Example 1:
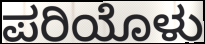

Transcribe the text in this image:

ಪರಿಯೊಳು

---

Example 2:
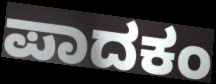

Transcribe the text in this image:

ಪಾದಕಂ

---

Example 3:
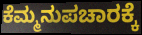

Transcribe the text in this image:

ಕೆಮ್ಮನುಪಚಾರಕ್ಕೆ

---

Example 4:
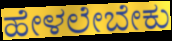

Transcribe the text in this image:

ಹೇಳಲೇಬೇಕು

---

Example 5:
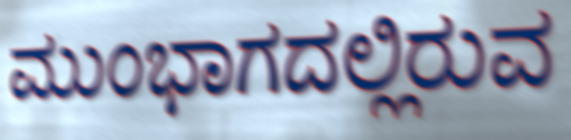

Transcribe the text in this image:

ಮುಂಭಾಗದಲ್ಲಿರುವ